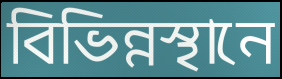
বিভিন্নস্থানে